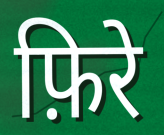
फ़िरे